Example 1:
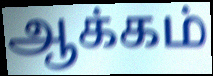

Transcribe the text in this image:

ஆக்கம்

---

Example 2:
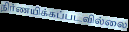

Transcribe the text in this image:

நிர்ணயிக்கப்படவில்லை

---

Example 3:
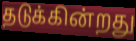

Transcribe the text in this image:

தடுக்கின்றது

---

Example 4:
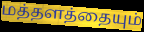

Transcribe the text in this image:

மத்தளத்தையும்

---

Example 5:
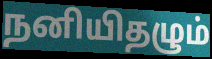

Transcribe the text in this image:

நனியிதழும்